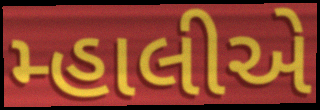
મ્હાલીએ